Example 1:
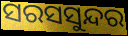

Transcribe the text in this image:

ସରସସୁନ୍ଦର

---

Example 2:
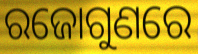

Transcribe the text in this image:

ରଜୋଗୁଣରେ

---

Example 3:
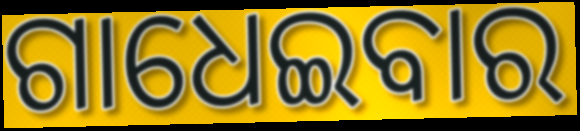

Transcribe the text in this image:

ଗାଧେଇବାର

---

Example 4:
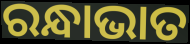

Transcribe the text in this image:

ରନ୍ଧାଭାତ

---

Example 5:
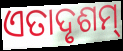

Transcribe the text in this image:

ଏତାଦୃଶମ୍